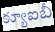
క్యూఐబీ